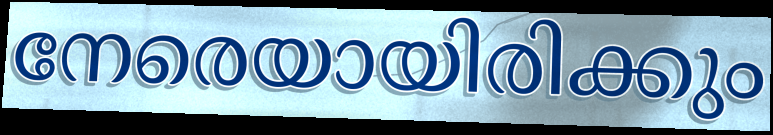
നേരെയായിരിക്കും